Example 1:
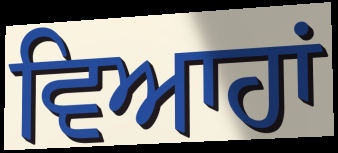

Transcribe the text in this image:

ਵਿਆਹਾਂ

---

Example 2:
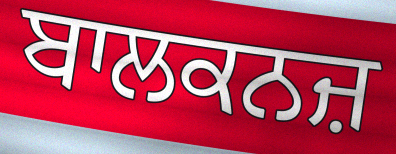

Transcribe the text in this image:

ਬਾਲਕਨਜ਼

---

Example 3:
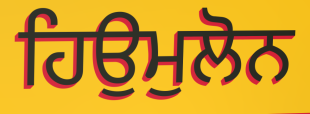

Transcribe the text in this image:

ਹਿਉਮੁਲੋਨ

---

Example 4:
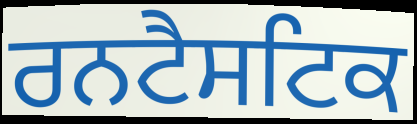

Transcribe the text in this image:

ਰਨਟੈਸਟਿਕ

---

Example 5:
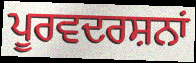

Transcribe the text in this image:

ਪੂਰਵਦਰਸ਼ਨਾਂ